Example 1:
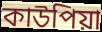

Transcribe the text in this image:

কাউপিয়া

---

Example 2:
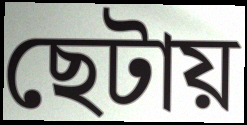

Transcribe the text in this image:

ছেটায়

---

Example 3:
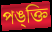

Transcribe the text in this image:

পঙ্‌ক্তি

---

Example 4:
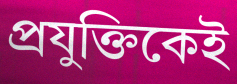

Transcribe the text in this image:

প্রযুক্তিকেই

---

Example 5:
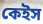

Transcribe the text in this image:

কেইস